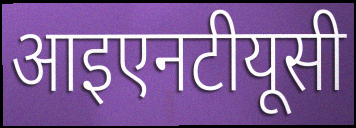
आइएनटीयूसी